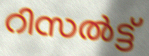
റിസൽട്ട്